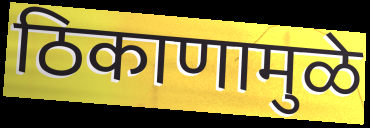
ठिकाणामुळे